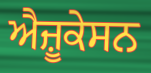
ਐਜ਼ੂਕੇਸਨ